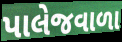
પાલેજવાળા